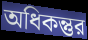
অধিকন্তুর